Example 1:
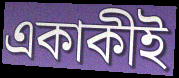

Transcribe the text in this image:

একাকীই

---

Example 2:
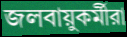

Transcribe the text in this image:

জলবায়ুকর্মীরা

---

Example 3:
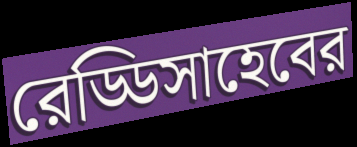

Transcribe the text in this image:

রেড্ডিসাহেবের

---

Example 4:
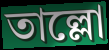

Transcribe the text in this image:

তাল্লো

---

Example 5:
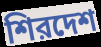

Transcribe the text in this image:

শিরদেশ